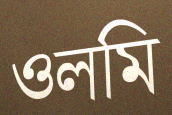
ওলমি